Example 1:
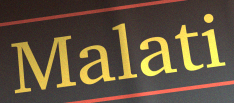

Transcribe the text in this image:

Malati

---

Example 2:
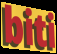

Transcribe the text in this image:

biti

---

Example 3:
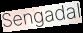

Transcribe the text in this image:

Sengadal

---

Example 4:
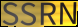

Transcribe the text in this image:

SSRN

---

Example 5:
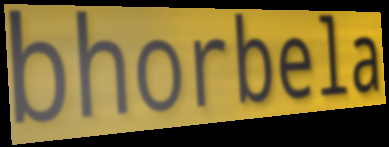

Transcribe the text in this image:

bhorbela